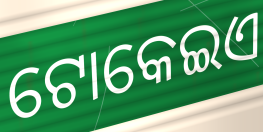
ଟୋକେଇଏ